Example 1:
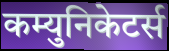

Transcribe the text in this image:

कम्युनिकेटर्स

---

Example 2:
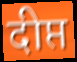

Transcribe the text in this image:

दीप्त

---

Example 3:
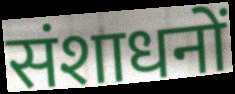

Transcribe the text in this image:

संशाधनों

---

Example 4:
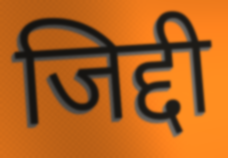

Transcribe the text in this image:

जिद्दी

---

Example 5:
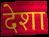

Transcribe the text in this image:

देशा